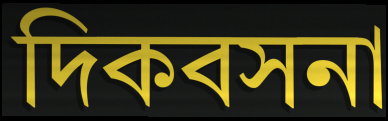
দিকবসনা